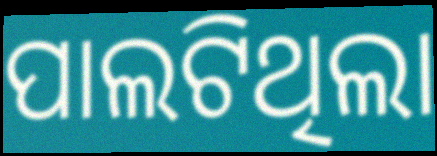
ପାଲଟିଥିଲା